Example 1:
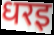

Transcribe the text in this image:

धरइ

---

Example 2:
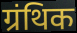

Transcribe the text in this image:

ग्रंथिक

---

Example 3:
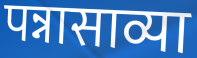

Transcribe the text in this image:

पन्नासाव्या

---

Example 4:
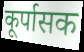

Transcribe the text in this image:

कूर्पासक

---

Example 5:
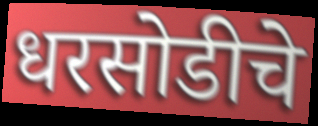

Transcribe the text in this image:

धरसोडीचे